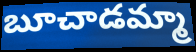
బూచాడమ్మా